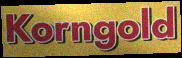
Korngold